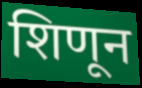
शिणून